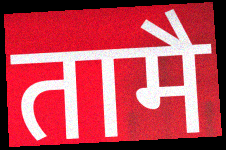
तामै